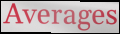
Averages